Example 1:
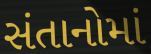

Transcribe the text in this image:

સંતાનોમાં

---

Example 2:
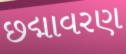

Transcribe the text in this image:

છદ્માવરણ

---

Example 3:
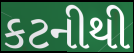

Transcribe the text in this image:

કટનીથી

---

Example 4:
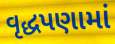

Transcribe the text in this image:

વૃદ્ધપણામાં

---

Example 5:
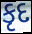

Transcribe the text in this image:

કૃદ